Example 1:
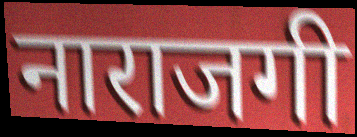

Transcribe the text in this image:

नाराजगी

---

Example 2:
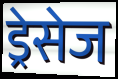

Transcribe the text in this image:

ड्रेसेज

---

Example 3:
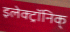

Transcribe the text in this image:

इलेक्ट्रॉनिक्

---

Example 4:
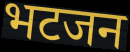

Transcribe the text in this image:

भटजन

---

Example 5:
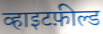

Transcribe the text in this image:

व्हाइटफ़ील्ड